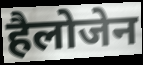
हैलोजेन